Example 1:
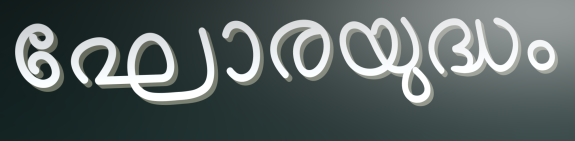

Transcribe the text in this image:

ഘോരയുദ്ധം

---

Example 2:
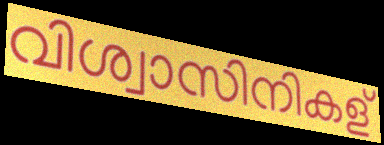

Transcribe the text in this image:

വിശ്വാസിനികള്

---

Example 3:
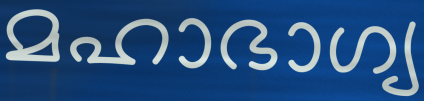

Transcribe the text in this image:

മഹാഭാഗ്യ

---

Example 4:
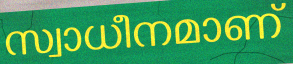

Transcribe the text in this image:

സ്വാധീനമാണ്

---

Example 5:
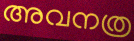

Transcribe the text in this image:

അവനത്ര